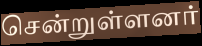
சென்றுள்ளனர்